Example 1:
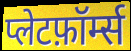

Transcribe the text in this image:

प्लेटफ़ॉर्म्स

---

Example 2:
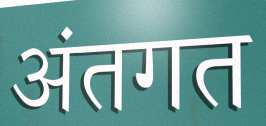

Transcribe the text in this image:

अंतगत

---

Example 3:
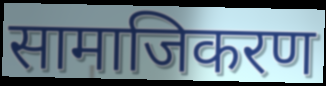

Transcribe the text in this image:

सामाजिकरण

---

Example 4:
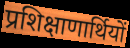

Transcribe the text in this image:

प्रशिक्षाणार्थियों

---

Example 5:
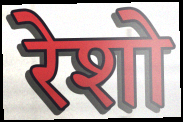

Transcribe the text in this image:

रेशो